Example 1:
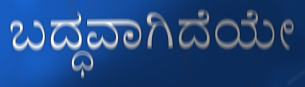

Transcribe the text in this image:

ಬದ್ಧವಾಗಿದೆಯೇ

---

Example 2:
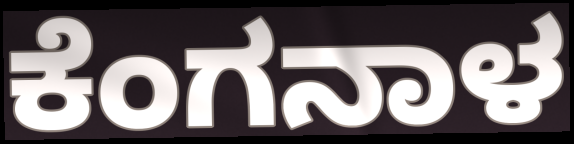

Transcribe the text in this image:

ಕೆಂಗನಾಳ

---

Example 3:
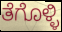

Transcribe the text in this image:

ತೆಗೊಳ್ಳಿ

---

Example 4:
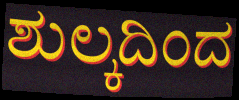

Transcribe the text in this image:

ಶುಲ್ಕದಿಂದ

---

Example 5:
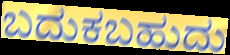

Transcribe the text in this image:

ಬದುಕಬಹುದು